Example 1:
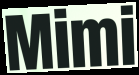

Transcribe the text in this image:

Mimi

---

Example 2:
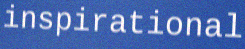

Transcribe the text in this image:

inspirational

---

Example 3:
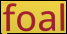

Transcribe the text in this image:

foal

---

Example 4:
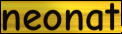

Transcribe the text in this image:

neonat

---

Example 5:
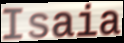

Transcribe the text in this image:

Isaia